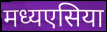
मध्यएसिया